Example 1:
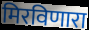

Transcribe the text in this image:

मिरविणारा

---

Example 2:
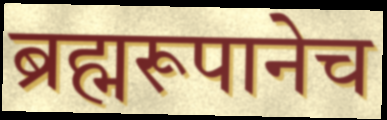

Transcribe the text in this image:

ब्रह्मरूपानेच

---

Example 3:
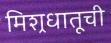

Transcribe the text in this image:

मिश्रधातूची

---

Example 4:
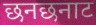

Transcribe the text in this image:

छनछनाट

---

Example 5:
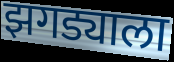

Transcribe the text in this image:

झगड्याला